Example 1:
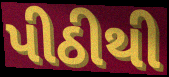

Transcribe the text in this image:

પીઠીથી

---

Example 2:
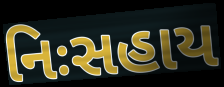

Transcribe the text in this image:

નિઃસહાય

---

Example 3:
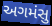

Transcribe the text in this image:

અગમંસુ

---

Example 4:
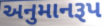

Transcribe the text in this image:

અનુમાનરૂપ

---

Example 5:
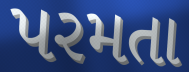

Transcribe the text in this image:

પરમતા